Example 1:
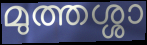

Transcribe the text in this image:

മുത്തശ്ശാ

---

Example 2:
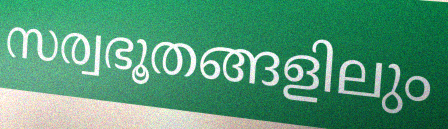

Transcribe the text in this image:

സര്വഭൂതങ്ങളിലും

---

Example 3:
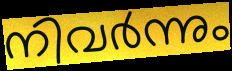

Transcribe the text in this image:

നിവർന്നും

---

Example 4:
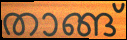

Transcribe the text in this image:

താങ്ങ്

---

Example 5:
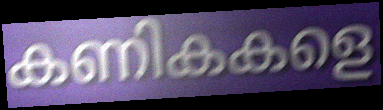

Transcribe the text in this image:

കണികകളെ